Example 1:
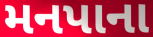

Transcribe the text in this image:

મનપાના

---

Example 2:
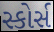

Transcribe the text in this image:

સ્કોર્સ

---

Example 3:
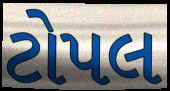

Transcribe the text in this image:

ટોપલ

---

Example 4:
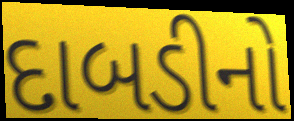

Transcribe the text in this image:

દાબડીનો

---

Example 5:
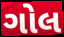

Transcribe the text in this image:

ગોલ